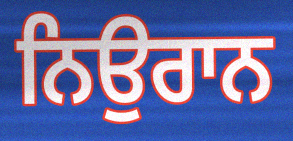
ਨਿਉਰਾਨ